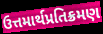
ઉત્તમાર્થપ્રતિક્રમણ